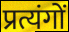
प्रत्यंगों